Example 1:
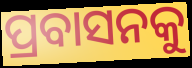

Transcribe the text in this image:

ପ୍ରବାସନକୁ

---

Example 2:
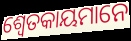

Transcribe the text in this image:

ଶ୍ୱେତକାୟମାନେ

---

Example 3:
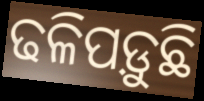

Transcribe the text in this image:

ଢଳିପଡ଼ୁଛି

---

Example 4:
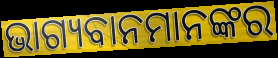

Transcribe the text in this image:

ଭାଗ୍ୟବାନମାନଙ୍କର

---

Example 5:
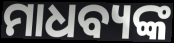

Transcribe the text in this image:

ମାଧବ୍ୟଙ୍କ